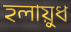
হলায়ুধ